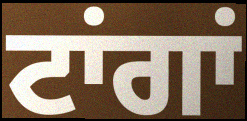
ਟਾਂਗਾਂ